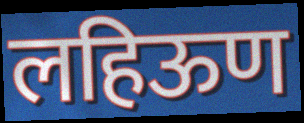
लहिऊण